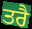
ਤਰੈ